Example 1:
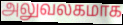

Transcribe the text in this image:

அலுவலகமாக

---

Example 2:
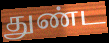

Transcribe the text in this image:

துண்ட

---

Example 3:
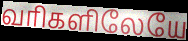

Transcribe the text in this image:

வரிகளிலேயே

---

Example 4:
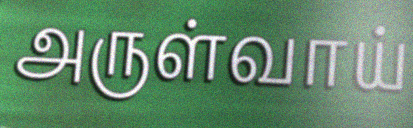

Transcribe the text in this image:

அருள்வாய்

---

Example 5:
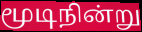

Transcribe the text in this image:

மூடிநின்று